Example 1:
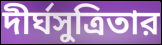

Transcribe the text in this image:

দীর্ঘসুত্রিতার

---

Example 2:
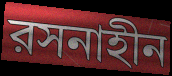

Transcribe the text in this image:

রসনাহীন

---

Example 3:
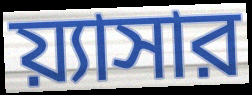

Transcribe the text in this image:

য়্যাসার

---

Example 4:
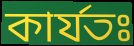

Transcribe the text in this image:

কার্যতঃ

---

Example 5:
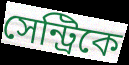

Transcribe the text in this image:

সেন্ট্রিকে